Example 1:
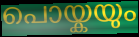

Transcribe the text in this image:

പൊയ്കയും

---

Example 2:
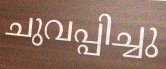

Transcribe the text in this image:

ചുവപ്പിച്ചു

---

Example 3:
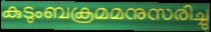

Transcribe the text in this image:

കുടുംബക്രമമനുസരിച്ചു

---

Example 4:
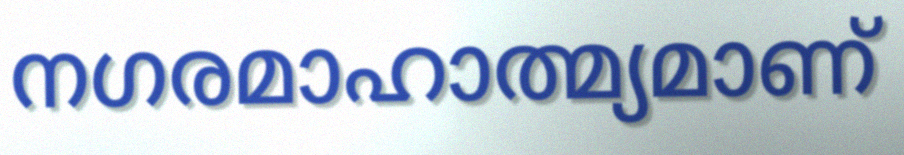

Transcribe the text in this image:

നഗരമാഹാത്മ്യമാണ്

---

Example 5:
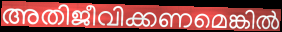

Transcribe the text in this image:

അതിജീവിക്കണമെങ്കിൽ